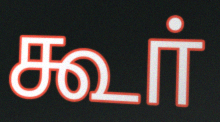
கூர்